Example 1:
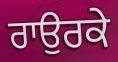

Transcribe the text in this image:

ਰਾਉਰਕੇ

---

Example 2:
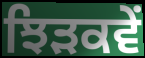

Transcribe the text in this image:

ਝਿੜਕਵੇਂ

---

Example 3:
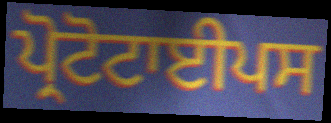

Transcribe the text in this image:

ਪ੍ਰੋਟੋਟਾਈਪਸ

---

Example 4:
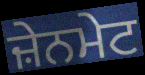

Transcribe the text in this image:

ਜ਼ੇਨਮੇਟ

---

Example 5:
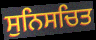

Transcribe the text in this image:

ਸੁਨਿਸਚਿਤ